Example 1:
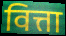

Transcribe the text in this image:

वित्ता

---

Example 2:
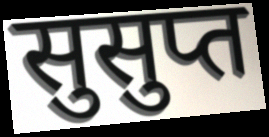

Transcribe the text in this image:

सुसुप्त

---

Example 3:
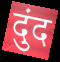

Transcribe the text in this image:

दुंद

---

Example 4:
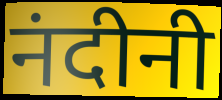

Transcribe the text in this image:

नंदीनी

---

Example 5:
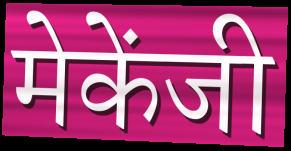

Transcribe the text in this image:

मेकेंजी